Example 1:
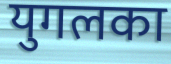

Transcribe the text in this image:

युगलका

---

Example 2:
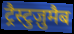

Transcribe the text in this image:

ट्रैस्टुज़ुमैब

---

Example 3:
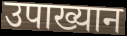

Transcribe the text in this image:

उपाख्यान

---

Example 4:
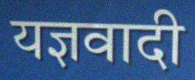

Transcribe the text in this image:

यज्ञवादी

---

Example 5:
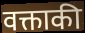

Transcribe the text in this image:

वक्ताकी